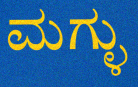
ಮಗ್ಳು